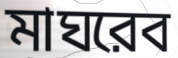
মাঘরেব